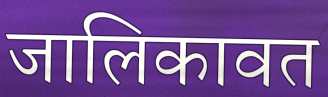
जालिकावत